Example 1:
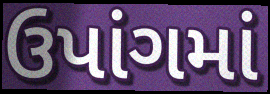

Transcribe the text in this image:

ઉપાંગમાં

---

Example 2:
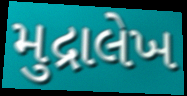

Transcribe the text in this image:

મુદ્રાલેખ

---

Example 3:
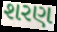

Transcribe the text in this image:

શરણ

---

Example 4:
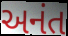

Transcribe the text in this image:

અનંત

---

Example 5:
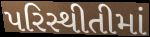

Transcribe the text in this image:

પરિસ્થીતીમાં